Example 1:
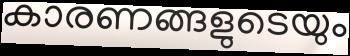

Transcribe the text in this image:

കാരണങ്ങളുടെയും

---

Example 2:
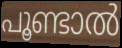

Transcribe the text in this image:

പൂണ്ടാൽ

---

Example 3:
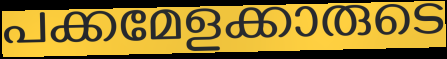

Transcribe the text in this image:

പക്കമേളക്കാരുടെ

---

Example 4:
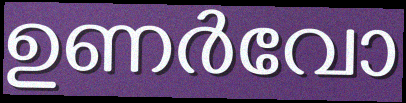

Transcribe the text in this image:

ഉണർവോ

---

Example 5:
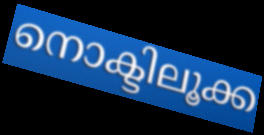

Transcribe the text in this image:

നൊക്ടിലൂക്ക